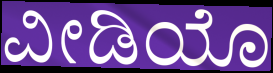
ವೀಡಿಯೊ